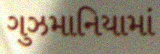
ગુઝમાનિયામાં